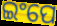
ଇଂପେ